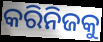
କରିନିଜକୁ